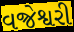
વજ્રેશ્વરી